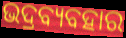
ଭଦ୍ରବ୍ୟବହାର